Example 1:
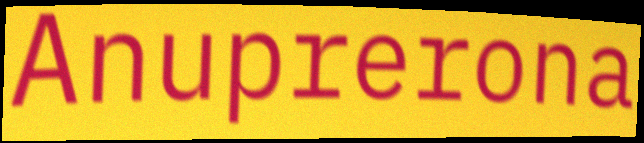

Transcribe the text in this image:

Anuprerona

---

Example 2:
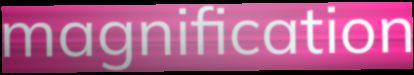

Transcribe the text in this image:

magnification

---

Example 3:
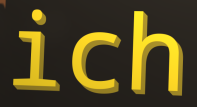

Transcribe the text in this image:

ich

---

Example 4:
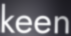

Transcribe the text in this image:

keen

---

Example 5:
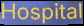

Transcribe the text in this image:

Hospital